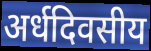
अर्धदिवसीय